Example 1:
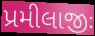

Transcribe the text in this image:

પ્રમીલાજીઃ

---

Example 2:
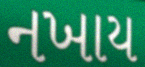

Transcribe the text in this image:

નખાય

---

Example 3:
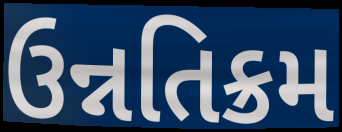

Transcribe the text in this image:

ઉન્નતિક્રમ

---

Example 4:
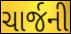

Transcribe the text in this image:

ચાર્જની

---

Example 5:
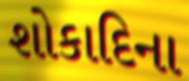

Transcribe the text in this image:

શોકાદિના